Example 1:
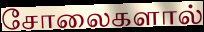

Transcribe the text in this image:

சோலைகளால்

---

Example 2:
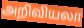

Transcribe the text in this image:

அறிவியலா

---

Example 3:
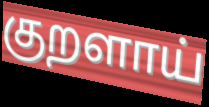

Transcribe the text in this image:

குறளாய்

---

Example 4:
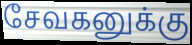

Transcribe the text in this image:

சேவகனுக்கு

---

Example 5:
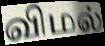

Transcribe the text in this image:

விமல்